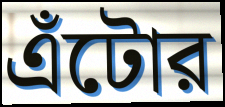
এঁটোর